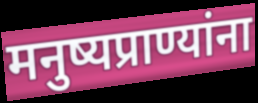
मनुष्यप्राण्यांना